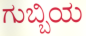
ಗುಬ್ಬಿಯ